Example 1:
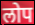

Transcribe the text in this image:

लोप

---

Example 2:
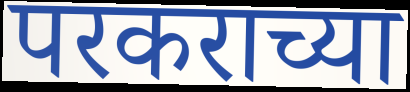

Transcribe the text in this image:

परकराच्या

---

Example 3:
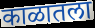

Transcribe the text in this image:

काळातला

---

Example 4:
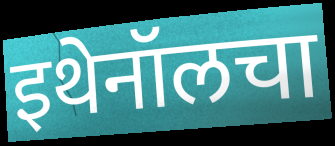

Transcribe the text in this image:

इथेनॉलचा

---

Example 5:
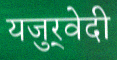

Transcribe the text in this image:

यजुर्वेदी